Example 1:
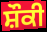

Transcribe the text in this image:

ਸ਼ੌਕੀ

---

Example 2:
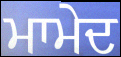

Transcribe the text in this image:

ਮਾਮੇਦ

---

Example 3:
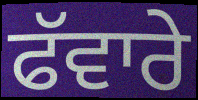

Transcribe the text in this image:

ਫੱਵਾਰੇ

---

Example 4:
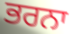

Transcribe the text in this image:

ਭਰਨਾ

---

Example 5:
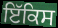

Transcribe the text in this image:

ਇੱਕਿਸ